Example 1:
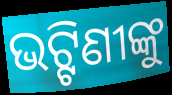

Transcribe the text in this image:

ଭଟ୍ଟିଣୀଙ୍କୁ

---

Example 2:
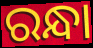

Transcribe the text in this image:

ରନ୍ଧା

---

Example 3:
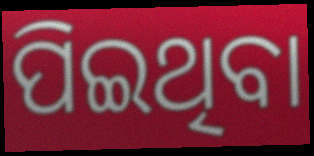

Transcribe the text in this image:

ପିଇଥିବା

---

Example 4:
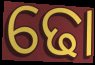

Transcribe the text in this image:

ଢୋ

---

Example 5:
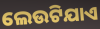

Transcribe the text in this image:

ଲେଉଟିଯାଏ